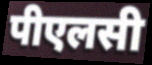
पीएलसी